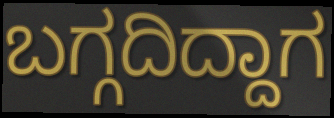
ಬಗ್ಗದಿದ್ದಾಗ